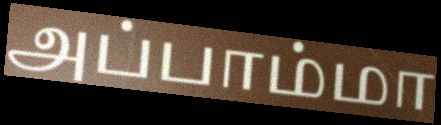
அப்பாம்மா